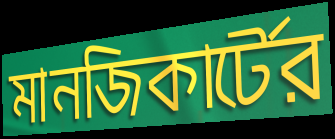
মানজিকার্টের